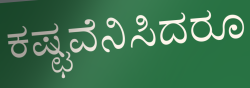
ಕಷ್ಟವೆನಿಸಿದರೂ